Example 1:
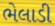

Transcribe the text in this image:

ભેલાડી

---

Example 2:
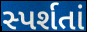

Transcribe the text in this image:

સ્પર્શતાં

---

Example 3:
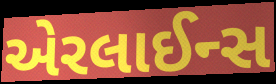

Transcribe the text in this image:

એરલાઈન્સ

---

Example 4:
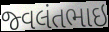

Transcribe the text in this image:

જ્વલંતભાઇ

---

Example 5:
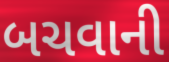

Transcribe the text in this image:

બચવાની